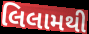
લિલામથી